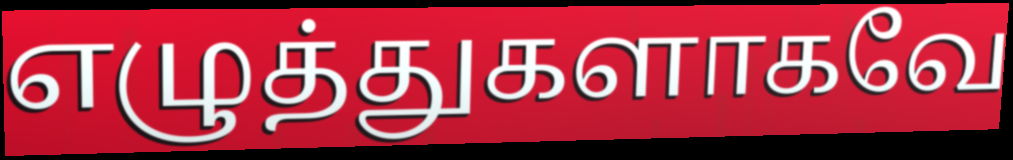
எழுத்துகளாகவே